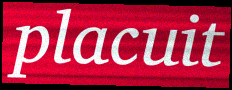
placuit